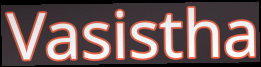
Vasistha